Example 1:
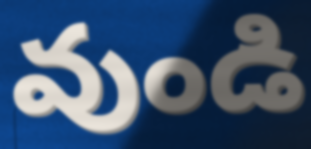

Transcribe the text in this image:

వుండి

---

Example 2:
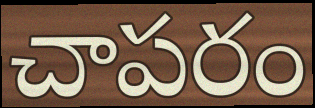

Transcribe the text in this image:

చాపరం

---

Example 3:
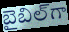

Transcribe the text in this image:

బైబిల్‌గా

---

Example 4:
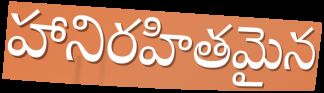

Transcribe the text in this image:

హానిరహితమైన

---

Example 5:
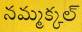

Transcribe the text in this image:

నమ్మక్కల్